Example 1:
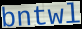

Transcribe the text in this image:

bntwl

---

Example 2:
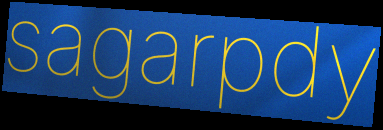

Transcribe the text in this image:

sagarpdy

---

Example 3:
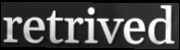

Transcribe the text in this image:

retrived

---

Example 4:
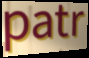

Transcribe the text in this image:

patr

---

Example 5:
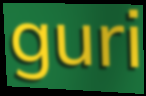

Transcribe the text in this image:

guri